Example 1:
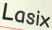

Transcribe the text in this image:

Lasix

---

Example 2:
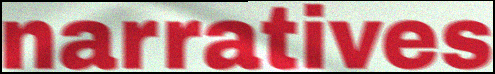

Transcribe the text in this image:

narratives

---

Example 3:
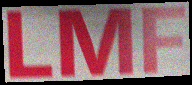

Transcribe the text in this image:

LMF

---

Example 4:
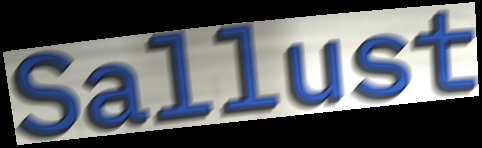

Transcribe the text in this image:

Sallust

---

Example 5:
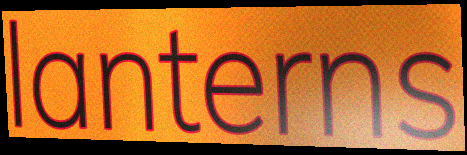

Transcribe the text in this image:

lanterns